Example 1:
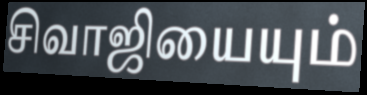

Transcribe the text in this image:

சிவாஜியையும்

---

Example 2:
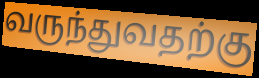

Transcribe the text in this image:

வருந்துவதற்கு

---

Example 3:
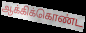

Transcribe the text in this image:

ஆக்கிக்கொண்ட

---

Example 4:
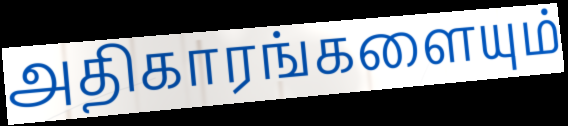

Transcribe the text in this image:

அதிகாரங்களையும்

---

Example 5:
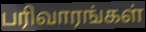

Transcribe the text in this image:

பரிவாரங்கள்